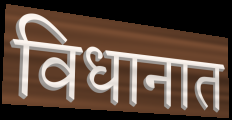
विधानात